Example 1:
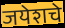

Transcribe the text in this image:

जयेशचे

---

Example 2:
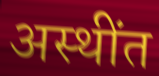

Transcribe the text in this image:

अस्थींत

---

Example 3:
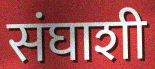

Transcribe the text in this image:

संघाशी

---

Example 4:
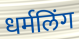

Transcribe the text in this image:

धर्मलिंग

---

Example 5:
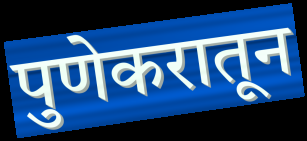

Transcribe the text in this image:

पुणेकरातून